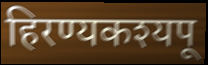
हिरण्यकश्यपू